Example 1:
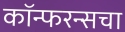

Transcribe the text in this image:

कॉन्फरन्सचा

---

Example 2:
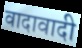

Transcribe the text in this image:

वादावादी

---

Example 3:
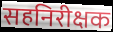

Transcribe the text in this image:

सहनिरीक्षक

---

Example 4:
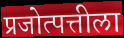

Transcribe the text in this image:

प्रजोत्पत्तीला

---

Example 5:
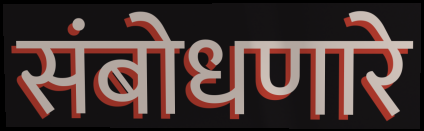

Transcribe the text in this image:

संबोधणारे